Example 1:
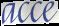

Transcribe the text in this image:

acce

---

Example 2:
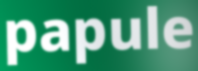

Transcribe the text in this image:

papule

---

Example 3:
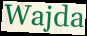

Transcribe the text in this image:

Wajda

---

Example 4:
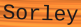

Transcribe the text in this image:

Sorley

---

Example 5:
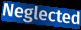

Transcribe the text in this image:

Neglected